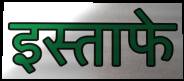
इस्ताफे